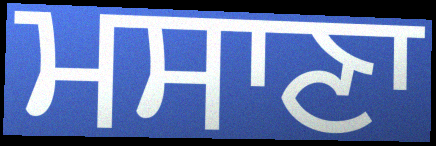
ਮਸਾਣਾ